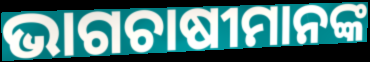
ଭାଗଚାଷୀମାନଙ୍କ